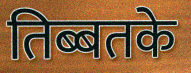
तिब्बतके